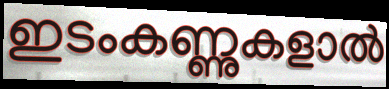
ഇടംകണ്ണുകളാൽ